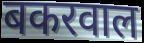
बकरवाल